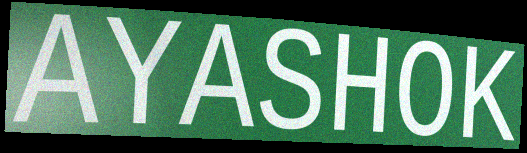
AYASHOK